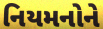
નિયમનોને